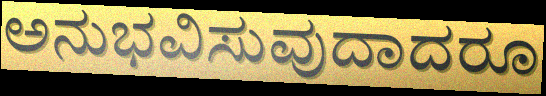
ಅನುಭವಿಸುವುದಾದರೂ